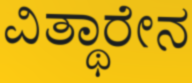
ವಿತ್ಥಾರೇನ